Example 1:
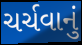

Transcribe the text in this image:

ચર્ચવાનું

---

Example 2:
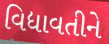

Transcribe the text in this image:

વિદ્યાવતીને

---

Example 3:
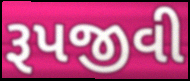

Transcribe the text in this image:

રૂપજીવી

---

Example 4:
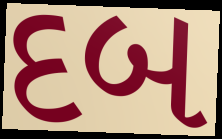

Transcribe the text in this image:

દબ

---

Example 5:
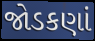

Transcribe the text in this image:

જોડકણાં